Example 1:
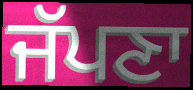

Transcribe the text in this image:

ਜੱਪਣਾ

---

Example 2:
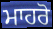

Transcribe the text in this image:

ਮਾਹਰੋ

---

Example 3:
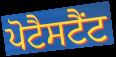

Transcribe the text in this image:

ਪੋਟੈਸਟੈਂਟ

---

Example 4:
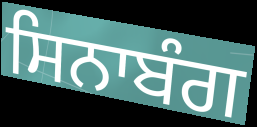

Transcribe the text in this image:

ਸਿਨਾਬੰਗ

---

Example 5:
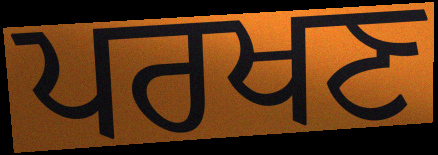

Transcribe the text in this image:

ਪਰਖਣ